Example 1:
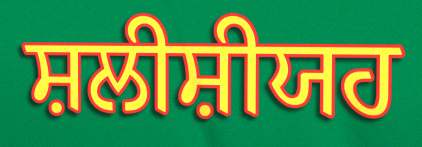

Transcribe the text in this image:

ਸ਼ਲੀਸ਼ੀਯਹ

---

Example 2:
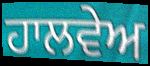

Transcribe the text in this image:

ਹਾਲਵੇਅ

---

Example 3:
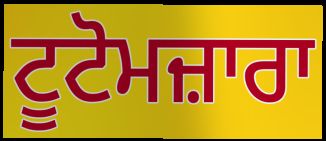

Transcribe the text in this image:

ਟੂਟੋਮਜ਼ਾਰਾ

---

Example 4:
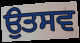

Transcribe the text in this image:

ਉਤਸਵ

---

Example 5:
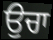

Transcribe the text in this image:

ਉਚਾ